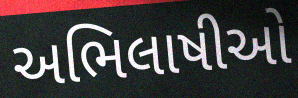
અભિલાષીઓ